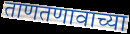
ताणतणावाच्या